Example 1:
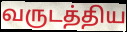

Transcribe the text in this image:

வருடத்திய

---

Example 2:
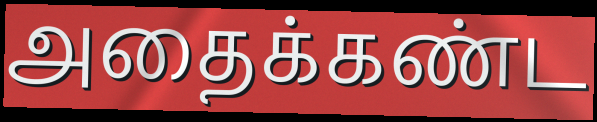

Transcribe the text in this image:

அதைக்கண்ட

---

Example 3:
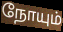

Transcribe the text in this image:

நோயும்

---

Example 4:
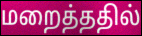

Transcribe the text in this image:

மறைத்ததில்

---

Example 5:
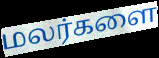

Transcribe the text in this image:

மலர்களை